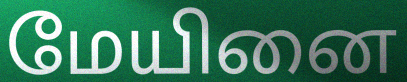
மேயினை